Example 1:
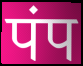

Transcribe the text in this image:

पंप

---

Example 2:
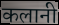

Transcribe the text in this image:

कलानी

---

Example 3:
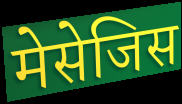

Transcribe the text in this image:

मेसेजिस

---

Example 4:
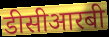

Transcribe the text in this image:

डीसीआरबी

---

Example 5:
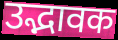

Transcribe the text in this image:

उद्भावक